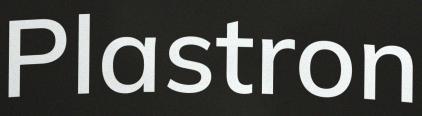
Plastron